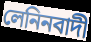
লেনিনবাদী